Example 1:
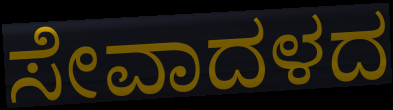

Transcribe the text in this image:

ಸೇವಾದಳದ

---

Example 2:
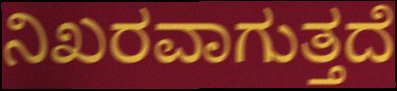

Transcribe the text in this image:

ನಿಖರವಾಗುತ್ತದೆ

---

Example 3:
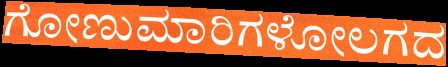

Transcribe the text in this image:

ಗೋಣುಮಾರಿಗಳೋಲಗದ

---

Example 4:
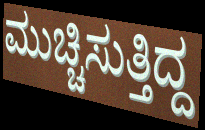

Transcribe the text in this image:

ಮುಚ್ಚಿಸುತ್ತಿದ್ದ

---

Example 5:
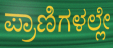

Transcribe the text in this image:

ಪ್ರಾಣಿಗಳಲ್ಲೇ